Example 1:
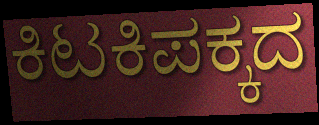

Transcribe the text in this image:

ಕಿಟಕಿಪಕ್ಕದ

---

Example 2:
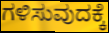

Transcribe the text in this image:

ಗಳಿಸುವುದಕ್ಕೆ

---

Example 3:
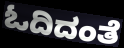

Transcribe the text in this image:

ಓದಿದಂತೆ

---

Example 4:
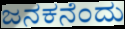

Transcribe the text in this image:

ಜನಕನೆಂದು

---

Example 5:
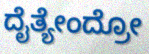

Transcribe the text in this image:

ದೈತ್ಯೇಂದ್ರೋ